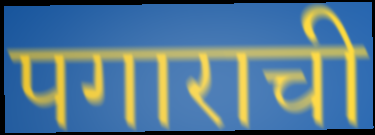
पगाराची